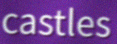
castles